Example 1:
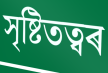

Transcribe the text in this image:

সৃষ্টিতত্বৰ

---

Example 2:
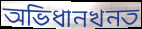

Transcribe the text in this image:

অভিধানখনত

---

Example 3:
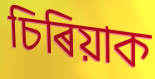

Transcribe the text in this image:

চিৰিয়াক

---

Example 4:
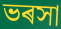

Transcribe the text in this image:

ভৰসা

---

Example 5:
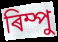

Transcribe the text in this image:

ৰিম্পু